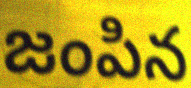
జంపిన